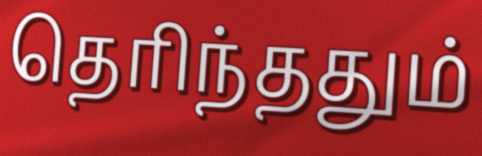
தெரிந்ததும்